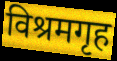
विश्रमगृह